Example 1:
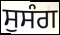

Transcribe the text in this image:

ਸੁਸੰਗ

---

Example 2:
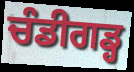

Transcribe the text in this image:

ਚੰਡੀਗਡ੍ਹ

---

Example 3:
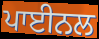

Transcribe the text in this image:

ਪਾਈਨਲ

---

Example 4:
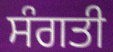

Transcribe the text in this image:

ਸੰਗਤੀ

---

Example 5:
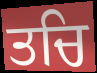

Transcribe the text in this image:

ਤਚਿ